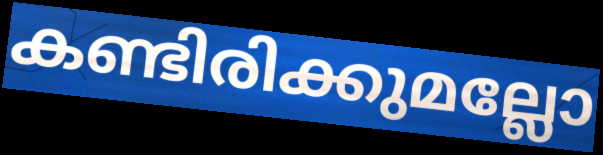
കണ്ടിരിക്കുമല്ലോ